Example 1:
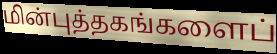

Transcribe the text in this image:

மின்புத்தகங்களைப்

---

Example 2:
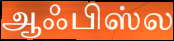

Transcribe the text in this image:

ஆஃபிஸ்ல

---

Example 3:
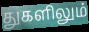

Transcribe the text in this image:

துகளிலும்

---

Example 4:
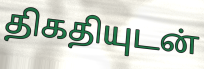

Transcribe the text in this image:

திகதியுடன்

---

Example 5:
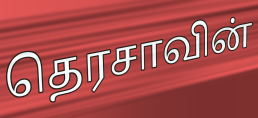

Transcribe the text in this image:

தெரசாவின்